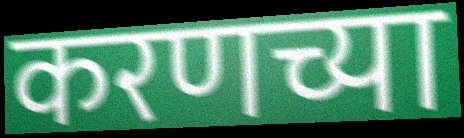
करणच्या